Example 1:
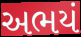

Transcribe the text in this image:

અભયં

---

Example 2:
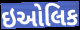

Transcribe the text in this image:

ઇઓલિક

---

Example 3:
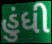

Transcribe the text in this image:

હુંધી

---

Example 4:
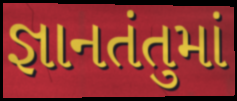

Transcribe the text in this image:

જ્ઞાનતંતુમાં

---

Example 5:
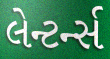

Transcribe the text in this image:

લેન્ટર્ન્સ